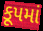
કૂપમાં